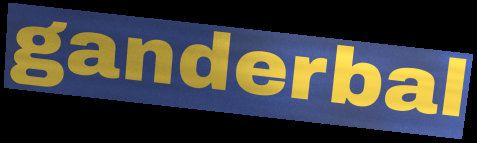
ganderbal